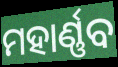
ମହାର୍ଣ୍ଣବ